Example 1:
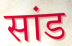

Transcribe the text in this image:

सांड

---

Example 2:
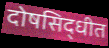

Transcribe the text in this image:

दोषसिद्धीत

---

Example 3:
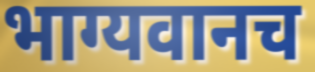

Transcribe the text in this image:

भाग्यवानच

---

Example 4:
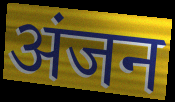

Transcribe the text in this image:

अंजन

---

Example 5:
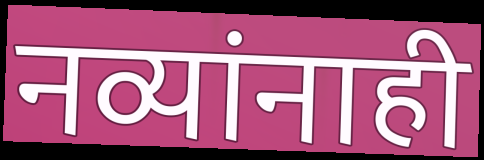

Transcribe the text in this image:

नव्यांनाही